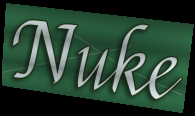
Nuke